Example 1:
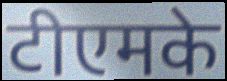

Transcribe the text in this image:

टीएमके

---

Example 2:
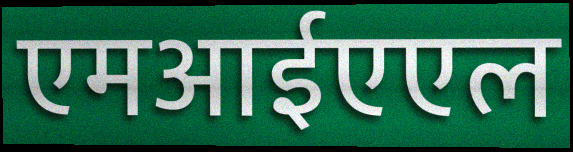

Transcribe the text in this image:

एमआईएएल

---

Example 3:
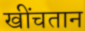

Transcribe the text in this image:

खींचतान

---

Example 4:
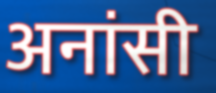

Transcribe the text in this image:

अनांसी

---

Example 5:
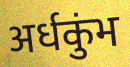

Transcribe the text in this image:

अर्धकुंभ